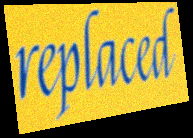
replaced